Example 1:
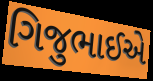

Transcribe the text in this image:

ગિજુભાઈએ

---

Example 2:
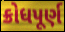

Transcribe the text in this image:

ક્રોધપૂર્ણ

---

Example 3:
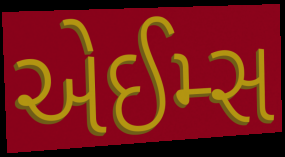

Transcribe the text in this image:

એઈમ્સ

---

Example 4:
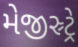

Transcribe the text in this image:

મેજીસ્ર્ટ્રે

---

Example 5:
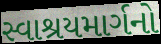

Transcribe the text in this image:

સ્વાશ્રયમાર્ગનો